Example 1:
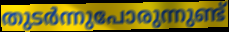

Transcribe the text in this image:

തുടർന്നുപോരുന്നുണ്ട്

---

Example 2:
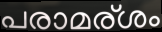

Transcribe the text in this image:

പരാമര്ശം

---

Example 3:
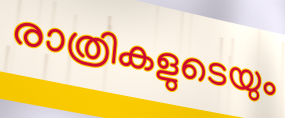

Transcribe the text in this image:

രാത്രികളുടെയും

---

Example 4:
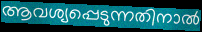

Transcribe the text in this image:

ആവശ്യപ്പെടുന്നതിനാൽ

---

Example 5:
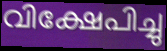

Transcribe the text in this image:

വിക്ഷേപിച്ചു